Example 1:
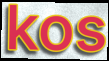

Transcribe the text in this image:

kos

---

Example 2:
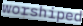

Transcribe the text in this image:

worshiped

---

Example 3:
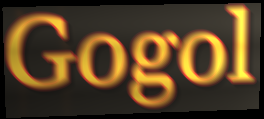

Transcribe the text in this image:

Gogol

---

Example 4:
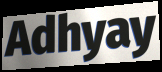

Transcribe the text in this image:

Adhyay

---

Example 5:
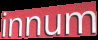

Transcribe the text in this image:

innum